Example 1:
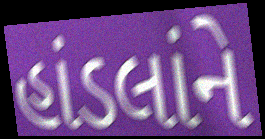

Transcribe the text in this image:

હાંડલાંને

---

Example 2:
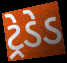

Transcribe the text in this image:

ટ્રેડેડ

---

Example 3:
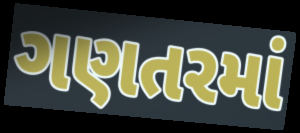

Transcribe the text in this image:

ગણતરમાં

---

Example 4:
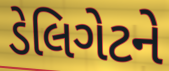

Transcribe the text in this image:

ડેલિગેટને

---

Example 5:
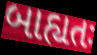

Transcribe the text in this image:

બાહ્યતઃ